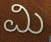
ಮಿ